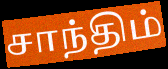
சாந்திம்